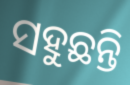
ସହୁଛନ୍ତି